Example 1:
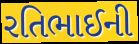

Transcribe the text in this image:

રતિભાઈની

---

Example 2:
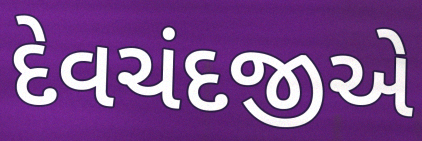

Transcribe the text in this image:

દેવચંદજીએ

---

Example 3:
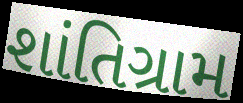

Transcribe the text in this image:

શાંતિગ્રામ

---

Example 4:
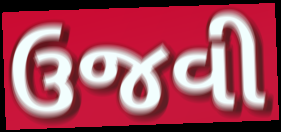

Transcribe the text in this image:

ઉજવી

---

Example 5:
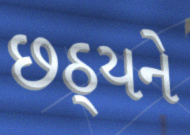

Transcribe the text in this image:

છઠ્યને